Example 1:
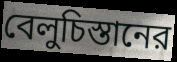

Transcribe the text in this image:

বেলুচিস্তানের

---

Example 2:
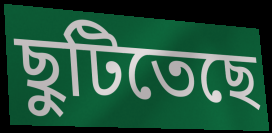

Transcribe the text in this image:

ছুটিতেছে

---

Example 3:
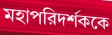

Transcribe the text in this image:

মহাপরিদর্শককে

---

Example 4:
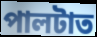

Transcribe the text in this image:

পালটাত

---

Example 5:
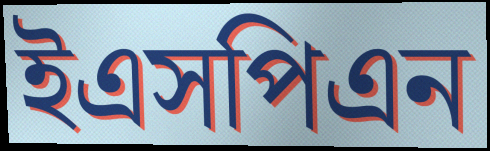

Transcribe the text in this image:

ইএসপিএন